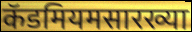
कॅडमियमसारख्या